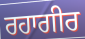
ਰਹਾਗੀਰ